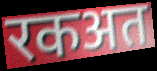
रकअत